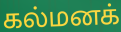
கல்மனக்